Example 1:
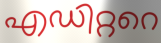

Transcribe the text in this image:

എഡിറ്ററെ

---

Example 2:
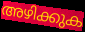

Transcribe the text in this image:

അഴിക്കുക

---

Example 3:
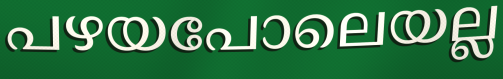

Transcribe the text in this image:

പഴയപോലെയല്ല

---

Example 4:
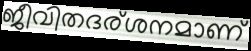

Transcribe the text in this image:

ജീവിതദര്ശനമാണ്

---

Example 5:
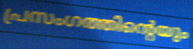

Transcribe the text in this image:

പ്രസംഗത്തിന്റെയും